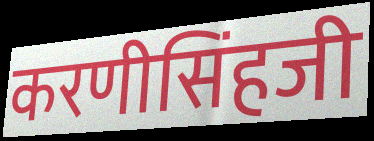
करणीसिंहजी